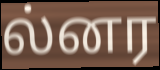
ல்னர